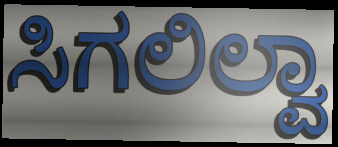
ಸಿಗಲಿಲ್ವಾ